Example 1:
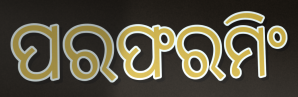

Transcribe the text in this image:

ପରଫରମିଂ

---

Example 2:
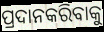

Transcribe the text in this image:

ପ୍ରଦାନକରିବାକୁ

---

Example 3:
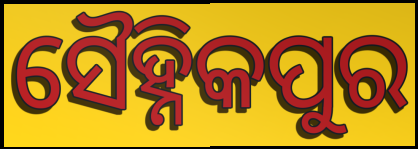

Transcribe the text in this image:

ସୈହ୍ନିକପୁର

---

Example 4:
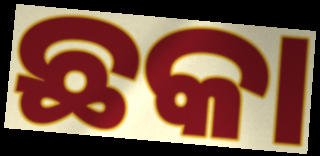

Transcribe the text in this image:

ଛକା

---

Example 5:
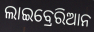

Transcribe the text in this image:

ଲାଇବ୍ରେରିଆନ